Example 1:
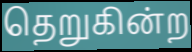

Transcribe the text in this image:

தெறுகின்ற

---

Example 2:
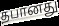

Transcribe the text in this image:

தபானது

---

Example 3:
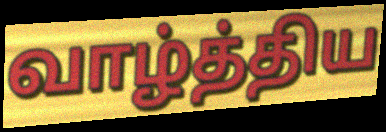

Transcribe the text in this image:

வாழ்த்திய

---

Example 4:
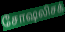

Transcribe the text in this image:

சோஷலிசக்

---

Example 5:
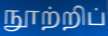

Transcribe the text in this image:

நூற்றிப்